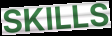
SKILLS